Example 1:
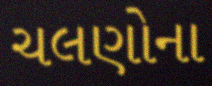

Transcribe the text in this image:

ચલણોના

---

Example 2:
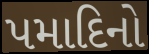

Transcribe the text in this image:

પમાદિનો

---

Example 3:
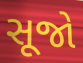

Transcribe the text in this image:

સૂજો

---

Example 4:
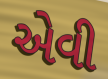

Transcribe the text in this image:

એવી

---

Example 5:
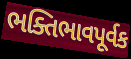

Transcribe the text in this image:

ભક્તિભાવપૂર્વક